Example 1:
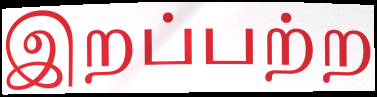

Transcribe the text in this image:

இறப்பற்ற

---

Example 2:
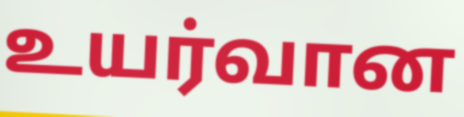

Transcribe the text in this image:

உயர்வான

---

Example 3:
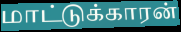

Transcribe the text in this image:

மாட்டுக்காரன்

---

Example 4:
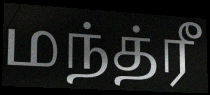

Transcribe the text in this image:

மந்த்ரீ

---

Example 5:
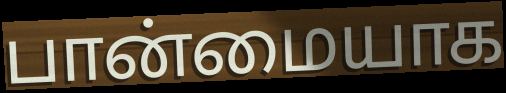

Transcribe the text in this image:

பான்மையாக